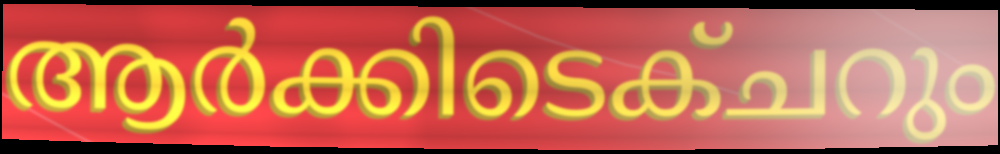
ആർക്കിടെക്ചറും